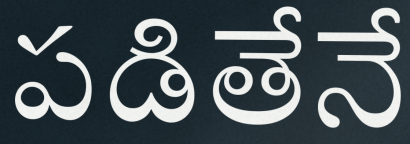
పడితేనే